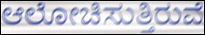
ಆಲೋಚಿಸುತ್ತಿರುವೆ